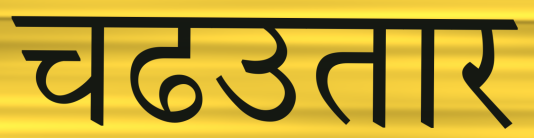
चढउतार